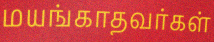
மயங்காதவர்கள்